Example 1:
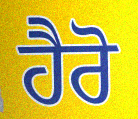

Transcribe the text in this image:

ਹੈਰੋ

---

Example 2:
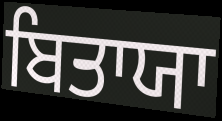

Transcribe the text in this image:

ਬਿਤਾਯਾ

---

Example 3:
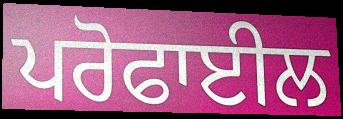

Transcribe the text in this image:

ਪਰੋਫਾਈਲ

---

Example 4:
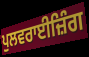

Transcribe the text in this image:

ਪੁਲਵਰਾਈਜ਼ਿੰਗ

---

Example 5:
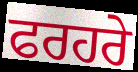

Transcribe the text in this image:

ਫਰਹਰੇ